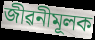
জীৱনীমূলক